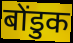
बोंडुक